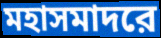
মহাসমাদরে